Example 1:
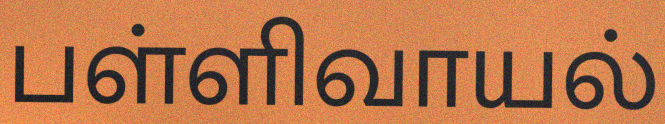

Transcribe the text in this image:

பள்ளிவாயல்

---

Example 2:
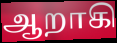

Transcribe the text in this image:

ஆறாகி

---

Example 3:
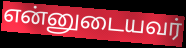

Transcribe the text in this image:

என்னுடையவர்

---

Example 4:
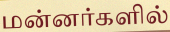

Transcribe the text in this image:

மன்னர்களில்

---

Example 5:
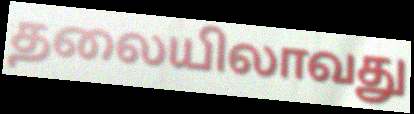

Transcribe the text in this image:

தலையிலாவது